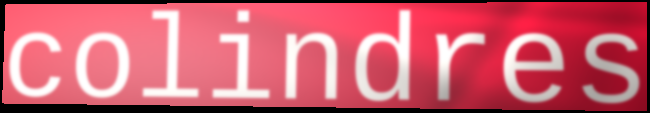
colindres